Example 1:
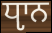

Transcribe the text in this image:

ਧੵਾਨ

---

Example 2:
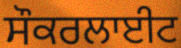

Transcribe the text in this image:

ਸੌਕਰਲਾਈਟ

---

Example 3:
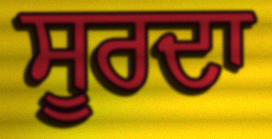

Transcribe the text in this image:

ਸੂਰਦਾ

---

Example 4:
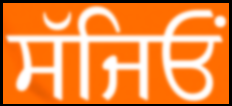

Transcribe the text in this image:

ਸੱਜਿਓਂ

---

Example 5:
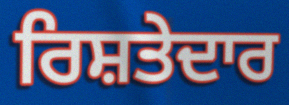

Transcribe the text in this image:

ਰਿਸ਼ਤੇਦਾਰ